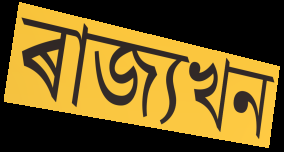
ৰাজ্যখন